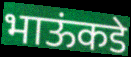
भाऊंकडे